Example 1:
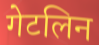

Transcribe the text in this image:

गेटलिन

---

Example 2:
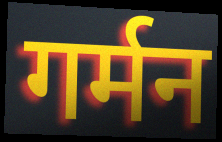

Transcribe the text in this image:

गर्मन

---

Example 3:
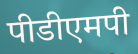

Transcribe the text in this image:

पीडीएमपी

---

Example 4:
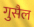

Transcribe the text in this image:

गुसैल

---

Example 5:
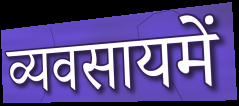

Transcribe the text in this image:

व्यवसायमें